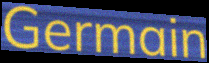
Germain